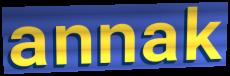
annak